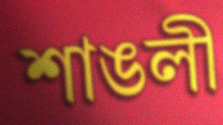
শাঙলী